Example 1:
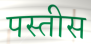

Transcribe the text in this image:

पस्तीस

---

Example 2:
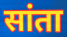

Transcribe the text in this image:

सांता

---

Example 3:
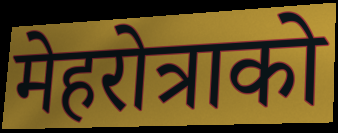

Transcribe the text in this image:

मेहरोत्राको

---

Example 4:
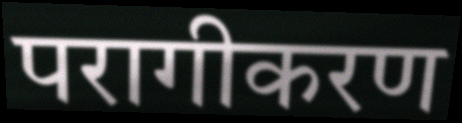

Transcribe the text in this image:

परागीकरण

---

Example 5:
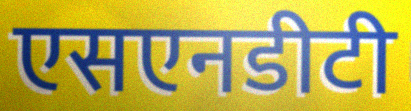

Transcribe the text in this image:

एसएनडीटी